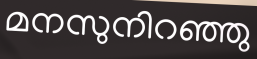
മനസുനിറഞ്ഞു